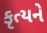
કૃત્યને